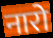
नारो